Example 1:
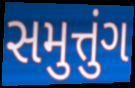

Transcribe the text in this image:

સમુત્તુંગ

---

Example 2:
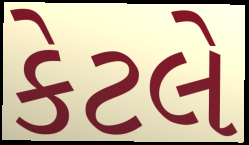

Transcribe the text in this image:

કેટલે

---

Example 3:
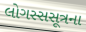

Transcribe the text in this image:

લોગસ્સસૂત્રના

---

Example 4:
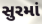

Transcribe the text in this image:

સુરમાં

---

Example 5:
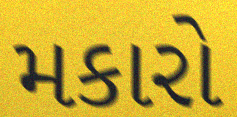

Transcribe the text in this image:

મકારો